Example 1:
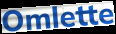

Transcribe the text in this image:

Omlette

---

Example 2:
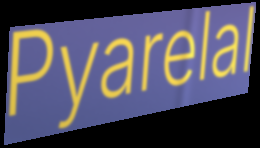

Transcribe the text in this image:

Pyarelal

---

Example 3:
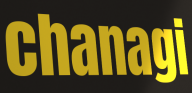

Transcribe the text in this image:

chanagi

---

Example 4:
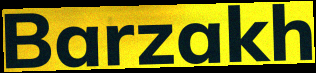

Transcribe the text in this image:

Barzakh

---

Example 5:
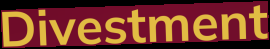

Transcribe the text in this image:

Divestment